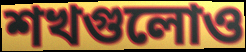
শখগুলোও